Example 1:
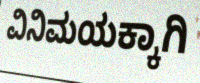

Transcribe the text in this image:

ವಿನಿಮಯಕ್ಕಾಗಿ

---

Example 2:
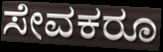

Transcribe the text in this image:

ಸೇವಕರೂ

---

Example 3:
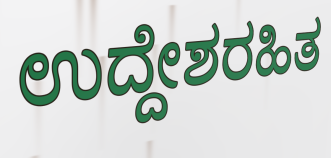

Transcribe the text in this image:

ಉದ್ದೇಶರಹಿತ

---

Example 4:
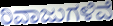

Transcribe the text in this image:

ರಿವಾಜುಗಳಿವೆ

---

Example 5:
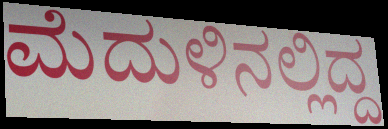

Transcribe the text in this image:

ಮೆದುಳಿನಲ್ಲಿದ್ದ